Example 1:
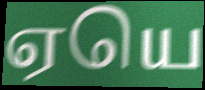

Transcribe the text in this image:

ஏயெ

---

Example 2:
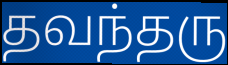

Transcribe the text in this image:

தவந்தரு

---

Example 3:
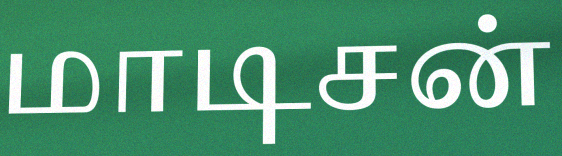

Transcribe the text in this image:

மாடிசன்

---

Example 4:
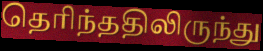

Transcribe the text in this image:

தெரிந்ததிலிருந்து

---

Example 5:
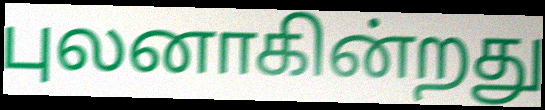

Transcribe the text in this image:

புலனாகின்றது